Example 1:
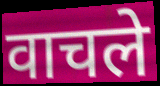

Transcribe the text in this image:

वाचले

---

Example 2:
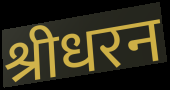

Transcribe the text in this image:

श्रीधरन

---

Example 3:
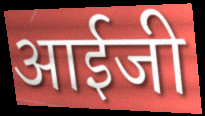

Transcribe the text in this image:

आईजी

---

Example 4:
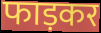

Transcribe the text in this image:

फाड़कर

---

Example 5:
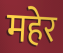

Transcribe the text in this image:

महेर